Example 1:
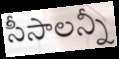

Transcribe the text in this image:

సీసాలన్నీ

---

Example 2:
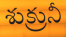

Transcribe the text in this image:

శుక్రునీ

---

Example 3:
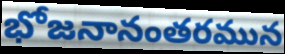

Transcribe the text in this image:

భోజనానంతరమున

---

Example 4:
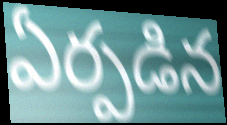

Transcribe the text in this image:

ఏర్పడిన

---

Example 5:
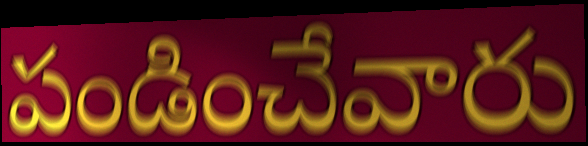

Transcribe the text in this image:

పండించేవారు